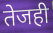
तेजही